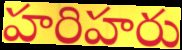
హరిహరు